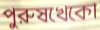
পুরুষখেকো